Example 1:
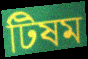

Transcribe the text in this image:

টিষম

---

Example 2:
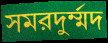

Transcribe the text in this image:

সমরদুর্ম্মদ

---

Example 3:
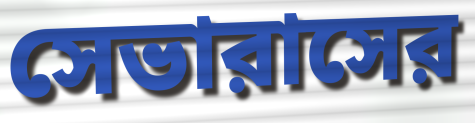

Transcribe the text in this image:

সেভারাসের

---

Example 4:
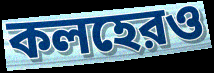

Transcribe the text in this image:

কলহেরও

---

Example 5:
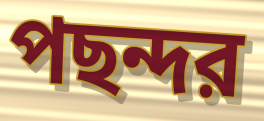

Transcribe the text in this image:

পছন্দর